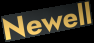
Newell